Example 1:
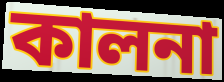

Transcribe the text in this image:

কালনা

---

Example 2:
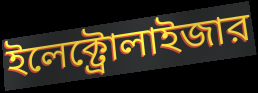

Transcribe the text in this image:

ইলেক্ট্রোলাইজার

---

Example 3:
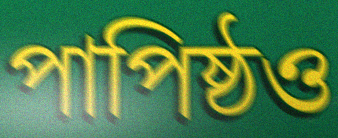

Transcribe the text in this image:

পাপিষ্ঠও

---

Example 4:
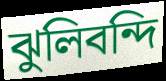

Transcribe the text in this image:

ঝুলিবন্দি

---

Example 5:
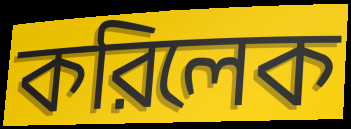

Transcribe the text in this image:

করিলেক